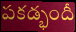
పకడ్భందీ